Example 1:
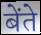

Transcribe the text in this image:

बेंते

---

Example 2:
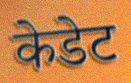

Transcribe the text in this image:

केडेट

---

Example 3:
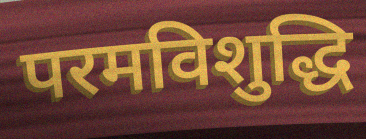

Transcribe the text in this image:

परमविशुद्धि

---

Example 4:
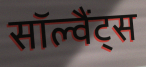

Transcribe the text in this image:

सॉल्वैंट्स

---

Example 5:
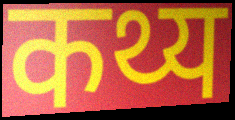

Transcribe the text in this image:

कथ्य